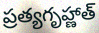
ప్రత్యగృహ్ణాత్